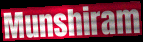
Munshiram